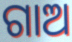
ଗାଅ